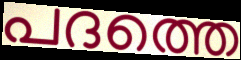
പദത്തെ